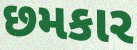
છમકાર